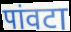
पांवटा